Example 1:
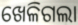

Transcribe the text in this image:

ଖେଳିଗଲା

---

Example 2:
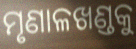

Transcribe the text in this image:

ମୃଣାଳଖଣ୍ଡକୁ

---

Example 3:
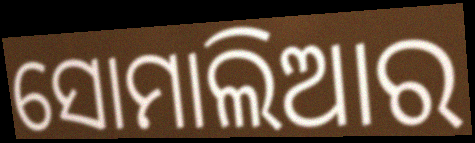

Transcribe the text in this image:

ସୋମାଲିଆର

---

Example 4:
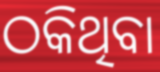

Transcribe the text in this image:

ଠକିଥିବା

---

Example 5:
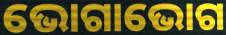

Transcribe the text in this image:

ଭୋଗାଭୋଗ